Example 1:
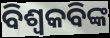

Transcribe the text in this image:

ବିଶ୍ୱକବିଙ୍କ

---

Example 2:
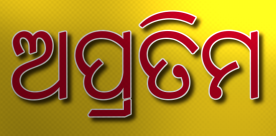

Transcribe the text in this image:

ଅପ୍ରତିମ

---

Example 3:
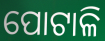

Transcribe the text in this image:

ପୋଟାଳି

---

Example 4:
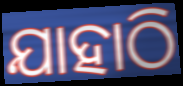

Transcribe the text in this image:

ଯାହାଠି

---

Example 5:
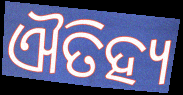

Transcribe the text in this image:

ଐତିହ୍ଯ